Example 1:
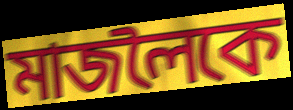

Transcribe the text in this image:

মাজলৈকে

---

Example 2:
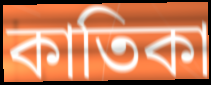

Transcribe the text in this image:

কাতিকা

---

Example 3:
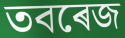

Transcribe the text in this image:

তবৰেজ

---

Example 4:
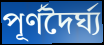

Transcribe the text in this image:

পূৰ্ণদৈৰ্ঘ্য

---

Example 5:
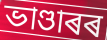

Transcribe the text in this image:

ভাণ্ডাৰৰ